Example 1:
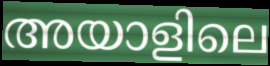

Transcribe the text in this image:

അയാളിലെ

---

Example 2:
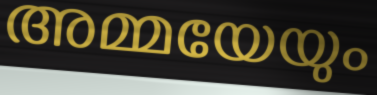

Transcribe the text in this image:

അമ്മയേയും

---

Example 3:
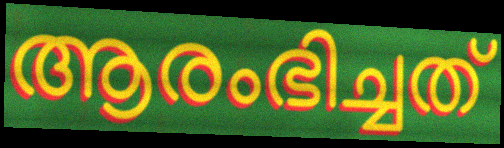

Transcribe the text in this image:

ആരംഭിച്ചത്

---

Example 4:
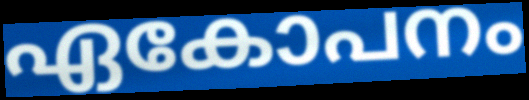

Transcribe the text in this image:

ഏകോപനം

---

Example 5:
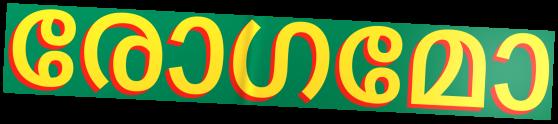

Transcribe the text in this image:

രോഗമോ